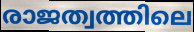
രാജത്വത്തിലെ